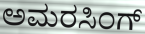
ಅಮರಸಿಂಗ್